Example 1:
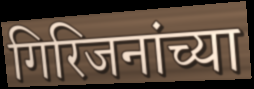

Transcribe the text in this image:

गिरिजनांच्या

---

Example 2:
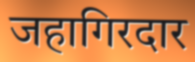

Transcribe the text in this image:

जहागिरदार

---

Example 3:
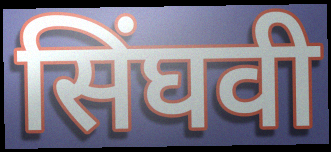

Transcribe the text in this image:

सिंघवी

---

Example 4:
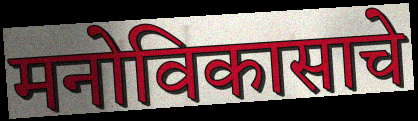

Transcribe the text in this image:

मनोविकासाचे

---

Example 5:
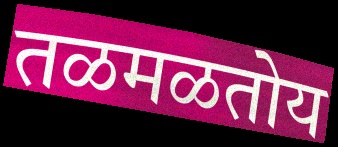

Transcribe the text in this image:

तळमळतोय